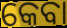
କେବା